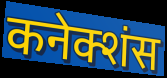
कनेक्शंस